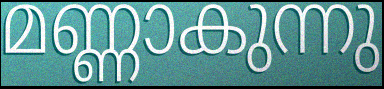
മണ്ണാകുന്നു